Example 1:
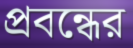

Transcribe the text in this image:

প্রবন্ধের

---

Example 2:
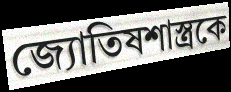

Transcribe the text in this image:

জ্যোতিষশাস্ত্রকে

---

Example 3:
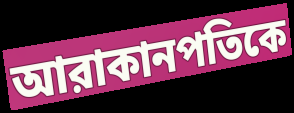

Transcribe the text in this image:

আরাকানপতিকে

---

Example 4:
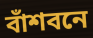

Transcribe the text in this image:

বাঁশবনে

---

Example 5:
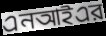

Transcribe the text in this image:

এনআইএর